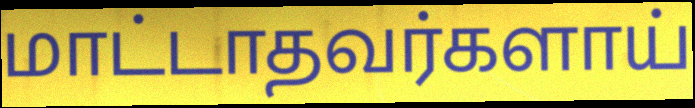
மாட்டாதவர்களாய்